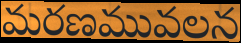
మరణమువలన